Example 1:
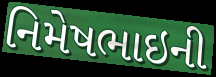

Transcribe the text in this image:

નિમેષભાઇની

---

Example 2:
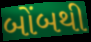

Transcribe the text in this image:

બોંબથી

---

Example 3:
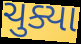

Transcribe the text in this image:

ચુક્યા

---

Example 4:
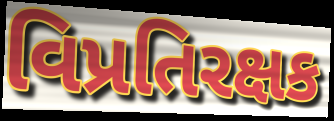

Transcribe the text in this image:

વિપ્રતિરક્ષક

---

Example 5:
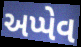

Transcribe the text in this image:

અપ્પેવ